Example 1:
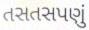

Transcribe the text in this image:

તસતસપણું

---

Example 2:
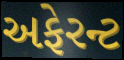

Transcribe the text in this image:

અફેરન્ટ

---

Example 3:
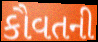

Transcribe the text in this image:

કૌવતની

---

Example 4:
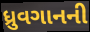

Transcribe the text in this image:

ધ્રુવગાનની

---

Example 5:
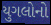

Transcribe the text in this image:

યુગલોનો